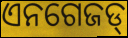
ଏନଗେଜଡ୍